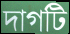
দাগটি